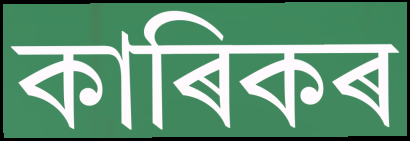
কাৰিকৰ